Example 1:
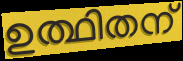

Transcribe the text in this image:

ഉത്ഥിതന്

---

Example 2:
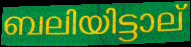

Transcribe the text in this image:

ബലിയിട്ടാല്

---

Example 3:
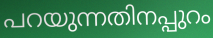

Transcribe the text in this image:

പറയുന്നതിനപ്പുറം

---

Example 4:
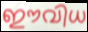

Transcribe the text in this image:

ഈവിധ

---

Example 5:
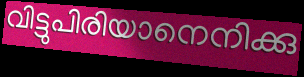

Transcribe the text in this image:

വിട്ടുപിരിയാനെനിക്കു